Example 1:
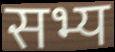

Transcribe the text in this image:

सभ्य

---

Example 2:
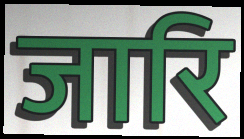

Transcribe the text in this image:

जारि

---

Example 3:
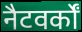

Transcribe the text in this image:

नैटवर्कों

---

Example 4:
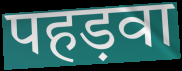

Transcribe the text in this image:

पहड़वा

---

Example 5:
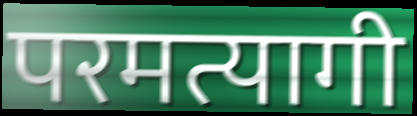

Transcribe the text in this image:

परमत्यागी